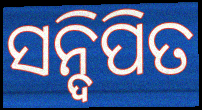
ସନ୍ଦିପିତ